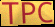
TPC